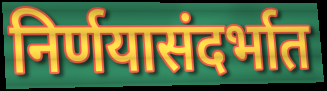
निर्णयासंदर्भात